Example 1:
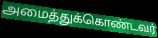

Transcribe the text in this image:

அமைத்துக்கொண்டவர்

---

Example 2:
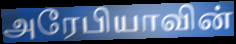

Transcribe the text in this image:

அரேபியாவின்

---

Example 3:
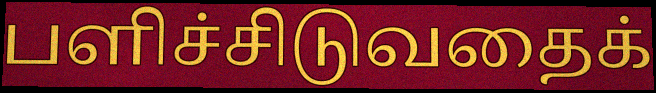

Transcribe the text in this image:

பளிச்சிடுவதைக்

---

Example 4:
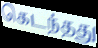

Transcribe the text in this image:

கெடந்தது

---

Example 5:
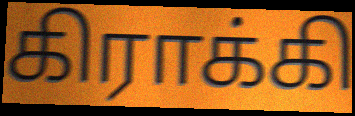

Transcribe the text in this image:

கிராக்கி